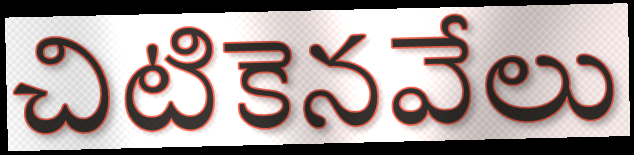
చిటికెనవేలు